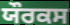
ਯੌਰਕਸ